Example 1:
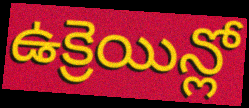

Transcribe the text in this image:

ఉక్రెయిన్లో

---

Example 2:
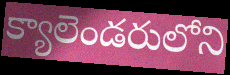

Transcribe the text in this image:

క్యాలెండరులోని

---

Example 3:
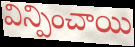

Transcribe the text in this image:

విన్పించాయి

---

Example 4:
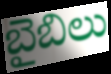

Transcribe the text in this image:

బైబిలు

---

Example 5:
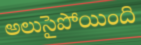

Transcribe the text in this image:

అలుసైపోయింది